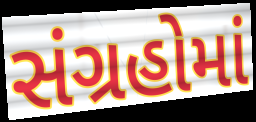
સંગ્રહોમાં